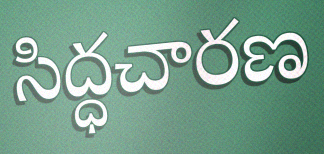
సిద్ధచారణ